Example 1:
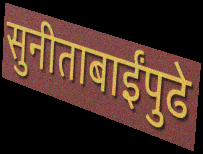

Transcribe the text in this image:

सुनीताबाईंपुढे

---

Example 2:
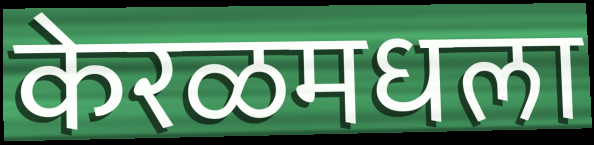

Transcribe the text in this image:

केरळमधला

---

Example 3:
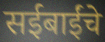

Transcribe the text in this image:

सईबाईंचे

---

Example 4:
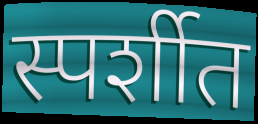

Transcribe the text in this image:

स्पर्शीत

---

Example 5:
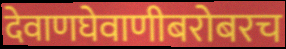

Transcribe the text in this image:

देवाणघेवाणीबरोबरच